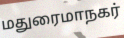
மதுரைமாநகர்